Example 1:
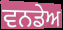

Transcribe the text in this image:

ਵਨਡੇਅ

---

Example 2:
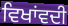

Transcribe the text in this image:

ਵਿਖਾਂਵਦੀ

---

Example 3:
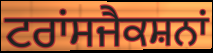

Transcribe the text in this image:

ਟਰਾਂਸਜੈਕਸ਼ਨਾਂ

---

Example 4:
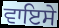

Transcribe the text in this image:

ਵਾਇਸੇ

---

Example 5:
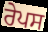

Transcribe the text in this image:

ਰੇਪਸ